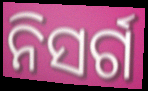
ନିସର୍ଗ